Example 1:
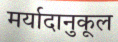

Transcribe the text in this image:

मर्यादानुकूल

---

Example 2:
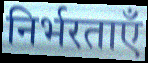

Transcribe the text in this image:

निर्भरताएँ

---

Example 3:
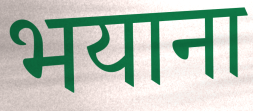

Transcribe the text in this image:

भयाना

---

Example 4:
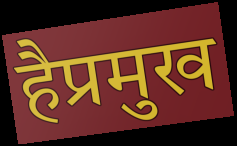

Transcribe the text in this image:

हैप्रमुख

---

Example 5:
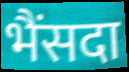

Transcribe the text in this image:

भैंसदा